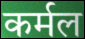
कर्मल